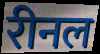
रीनल